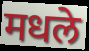
मधले